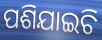
ପଶିଯାଇଚି